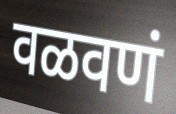
वळवणं